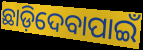
ଛାଡ଼ିଦେବାପାଇଁ